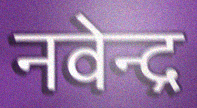
नवेन्द्र